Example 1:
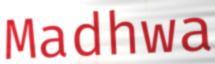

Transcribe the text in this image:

Madhwa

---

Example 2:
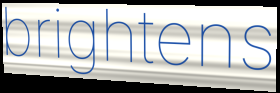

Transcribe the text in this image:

brightens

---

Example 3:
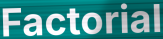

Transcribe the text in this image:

Factorial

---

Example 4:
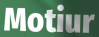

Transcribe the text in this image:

Motiur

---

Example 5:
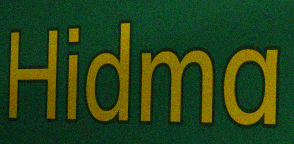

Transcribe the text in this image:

Hidma